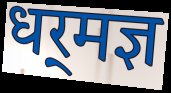
धर्मज्ञ